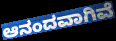
ಆನಂದವಾಗಿವೆ